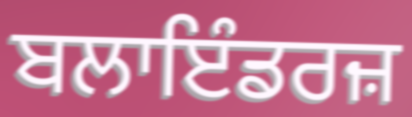
ਬਲਾਇੰਡਰਜ਼